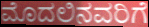
ಮೊದಲಿನವರಿಗೆ